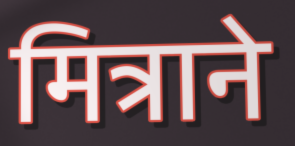
मित्राने